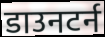
डाउनटर्न